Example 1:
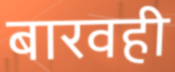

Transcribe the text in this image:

बारवही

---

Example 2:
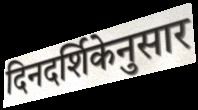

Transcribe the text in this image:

दिनदर्शिकेनुसार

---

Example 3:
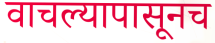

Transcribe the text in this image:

वाचल्यापासूनच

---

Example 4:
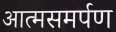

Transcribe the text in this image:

आत्मसमर्पण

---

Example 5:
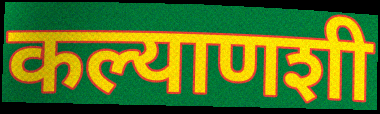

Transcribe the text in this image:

कल्याणशी